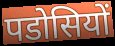
पडोसियों